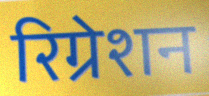
रिग्रेशन